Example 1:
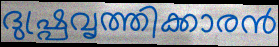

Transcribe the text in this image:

ദുഷ്പ്രവൃത്തിക്കാരൻ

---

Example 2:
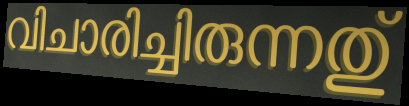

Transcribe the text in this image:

വിചാരിച്ചിരുന്നതു്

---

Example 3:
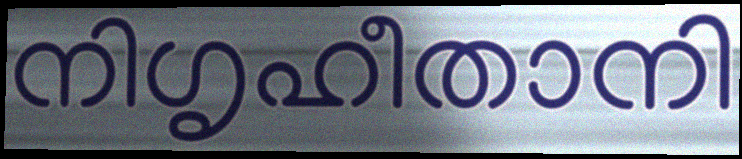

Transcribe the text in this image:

നിഗൃഹീതാനി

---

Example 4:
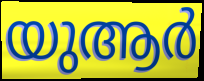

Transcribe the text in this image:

യുആർ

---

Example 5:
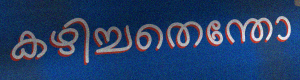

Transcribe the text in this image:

കഴിച്ചതെന്തോ